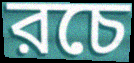
রচে